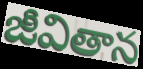
జీవితాన